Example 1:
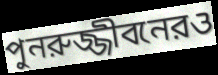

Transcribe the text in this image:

পুনরুজ্জীবনেরও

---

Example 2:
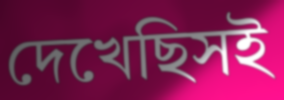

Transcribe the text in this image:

দেখেছিসই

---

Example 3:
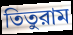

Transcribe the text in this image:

তিতুরাম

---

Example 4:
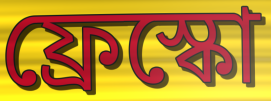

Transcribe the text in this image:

ফ্রেস্কো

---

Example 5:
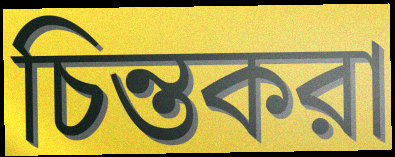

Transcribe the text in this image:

চিন্তকরা